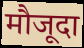
मौजूदा